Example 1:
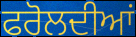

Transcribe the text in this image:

ਫਰੋਲਦੀਆਂ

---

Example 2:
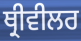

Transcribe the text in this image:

ਥ੍ਰੀਵੀਲਰ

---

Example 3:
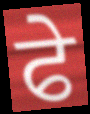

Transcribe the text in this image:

ਫੇ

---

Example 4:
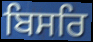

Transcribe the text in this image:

ਬਿਸਰਿ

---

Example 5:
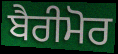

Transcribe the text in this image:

ਬੈਰੀਮੋਰ